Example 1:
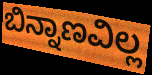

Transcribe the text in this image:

ಬಿನ್ನಾಣವಿಲ್ಲ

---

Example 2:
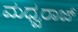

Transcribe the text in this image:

ಮಧ್ವರಾಜ್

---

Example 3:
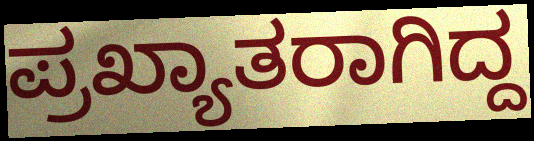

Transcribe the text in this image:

ಪ್ರಖ್ಯಾತರಾಗಿದ್ದ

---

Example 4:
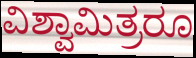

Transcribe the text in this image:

ವಿಶ್ವಾಮಿತ್ರರೂ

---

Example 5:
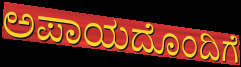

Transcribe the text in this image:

ಅಪಾಯದೊಂದಿಗೆ